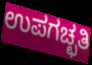
ಉಪಗಚ್ಛತಿ